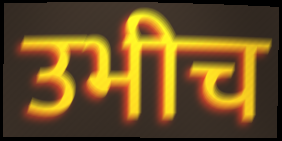
उभीच